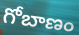
గోబాణం